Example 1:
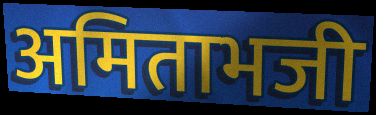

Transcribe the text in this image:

अमिताभजी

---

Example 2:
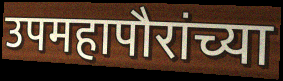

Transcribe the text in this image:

उपमहापौरांच्या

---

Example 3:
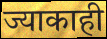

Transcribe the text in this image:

ज्याकाही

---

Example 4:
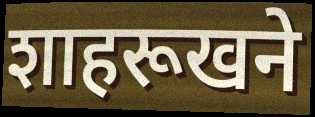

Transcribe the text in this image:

शाहरूखने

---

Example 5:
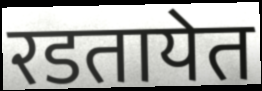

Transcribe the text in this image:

रडतायेत